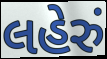
લહેરું